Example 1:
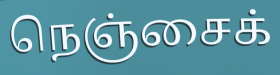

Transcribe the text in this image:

நெஞ்சைக்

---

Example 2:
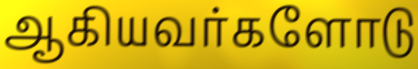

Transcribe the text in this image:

ஆகியவர்களோடு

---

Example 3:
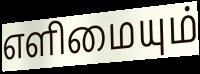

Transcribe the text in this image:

எளிமையும்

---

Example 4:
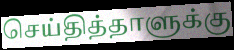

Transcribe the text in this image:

செய்தித்தாளுக்கு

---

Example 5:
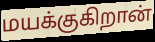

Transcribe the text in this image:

மயக்குகிறான்